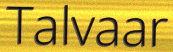
Talvaar